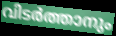
വിടർത്താനും